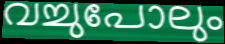
വച്ചുപോലും